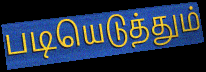
படியெடுத்தும்